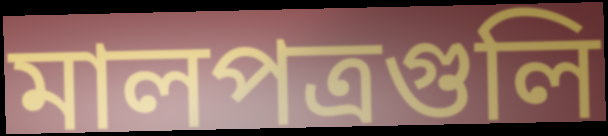
মালপত্রগুলি